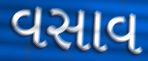
વસાવ